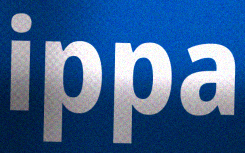
ippa